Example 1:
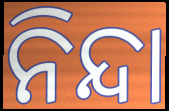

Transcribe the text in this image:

ନିନ୍ଦା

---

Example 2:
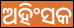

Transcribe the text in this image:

ଅହିଂସକ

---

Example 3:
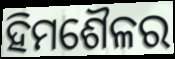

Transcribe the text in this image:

ହିମଶୈଳର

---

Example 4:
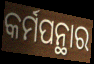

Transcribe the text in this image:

କର୍ମପନ୍ଥାର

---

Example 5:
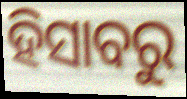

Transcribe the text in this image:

ହିସାବରୁ